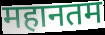
महानतम